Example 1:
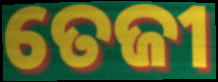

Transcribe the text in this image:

ତେଜୀ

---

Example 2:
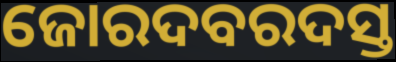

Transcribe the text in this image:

ଜୋରଦବରଦସ୍ତ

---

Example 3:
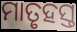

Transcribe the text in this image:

ମାତୃହସ୍ତ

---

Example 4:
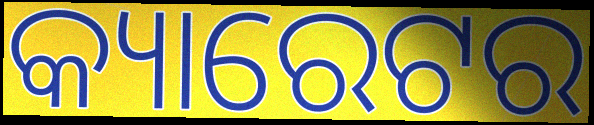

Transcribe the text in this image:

କ୍ୟାରେଟର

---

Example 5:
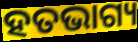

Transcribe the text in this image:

ହତଭାଗ୍ୟ